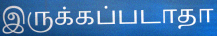
இருக்கப்படாதா